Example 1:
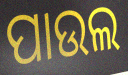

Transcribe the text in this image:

ପାଉଲ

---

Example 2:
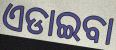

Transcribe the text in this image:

ଏଡାଇବା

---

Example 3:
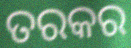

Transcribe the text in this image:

ତରକର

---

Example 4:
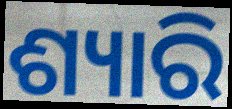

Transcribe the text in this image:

ଶ୍ୟାରି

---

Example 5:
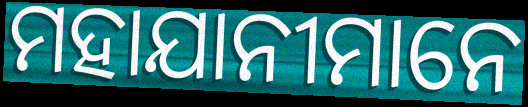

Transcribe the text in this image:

ମହାଯାନୀମାନେ